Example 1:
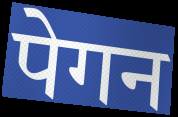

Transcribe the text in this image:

पेगन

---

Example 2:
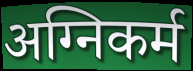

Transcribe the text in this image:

अग्निकर्म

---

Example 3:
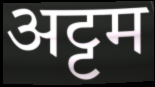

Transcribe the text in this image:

अट्टम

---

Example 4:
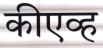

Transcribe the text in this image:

कीएव्ह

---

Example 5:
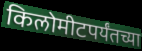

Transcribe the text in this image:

किलोमीटपर्यंतच्या